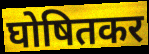
घोषितकर